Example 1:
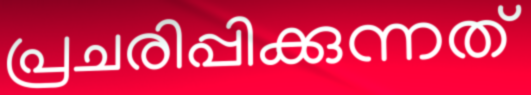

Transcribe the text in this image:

പ്രചരിപ്പിക്കുന്നത്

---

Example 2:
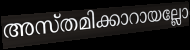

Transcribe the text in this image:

അസ്തമിക്കാറായല്ലോ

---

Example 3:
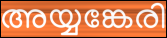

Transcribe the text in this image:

അയ്യങ്കേരി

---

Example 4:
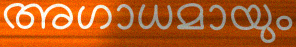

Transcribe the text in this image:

അഗാധമായും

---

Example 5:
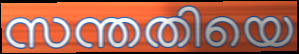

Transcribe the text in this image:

സന്തതിയെ